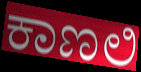
ಕಾಣಲಿ